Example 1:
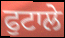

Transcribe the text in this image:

ਫੁਟਾਲੇ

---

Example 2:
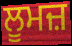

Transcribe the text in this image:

ਲੂਮਜ਼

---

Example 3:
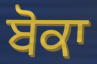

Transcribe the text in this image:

ਬੋਕਾ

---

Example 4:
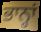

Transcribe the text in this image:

ਭਾਨ੍ਹਾਂ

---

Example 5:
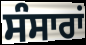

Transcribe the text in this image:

ਸੰਸਾਰਾਂ